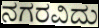
ನಗರವಿದು